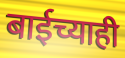
बाईच्याही